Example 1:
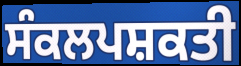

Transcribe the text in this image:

ਸੰਕਲਪਸ਼ਕਤੀ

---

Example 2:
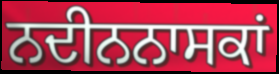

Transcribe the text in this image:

ਨਦੀਨਨਾਸਕਾਂ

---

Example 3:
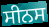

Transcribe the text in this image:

ਸੀਨਸ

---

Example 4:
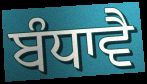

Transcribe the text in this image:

ਬੰਧਾਵੈ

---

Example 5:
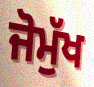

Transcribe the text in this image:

ਜੋਮੁੱਖ